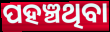
ପହଞ୍ଚଥିବା